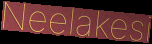
Neelakesi